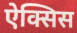
ऐक्सिस